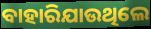
ବାହାରିଯାଉଥିଲେ